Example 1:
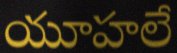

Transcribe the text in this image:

యూహలే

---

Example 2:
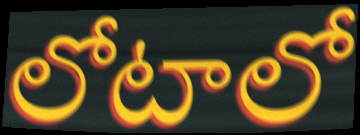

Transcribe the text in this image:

లోటాలో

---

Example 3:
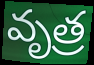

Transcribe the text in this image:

వృత్ర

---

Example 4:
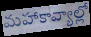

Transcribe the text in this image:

మహాకావ్యాల్లో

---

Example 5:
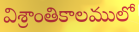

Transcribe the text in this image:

విశ్రాంతికాలములో